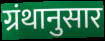
ग्रंथानुसार